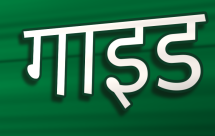
गाइड